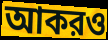
আকরও